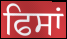
ਫਿਸਾਂ